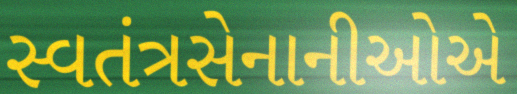
સ્વતંત્રસેનાનીઓએ